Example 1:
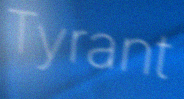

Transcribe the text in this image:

Tyrant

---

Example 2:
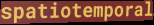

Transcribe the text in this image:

spatiotemporal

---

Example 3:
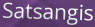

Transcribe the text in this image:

Satsangis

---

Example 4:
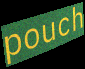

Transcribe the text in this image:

pouch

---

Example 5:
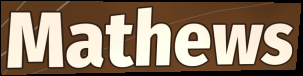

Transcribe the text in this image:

Mathews